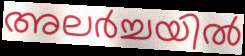
അലർച്ചയിൽ